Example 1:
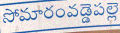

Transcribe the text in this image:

సోమారంవడ్డెపల్లె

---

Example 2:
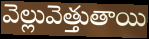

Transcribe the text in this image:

వెల్లువెత్తుతాయి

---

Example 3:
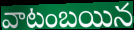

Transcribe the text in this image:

వాటంబయిన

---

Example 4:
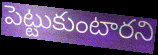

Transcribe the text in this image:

పెట్టుకుంటారని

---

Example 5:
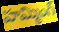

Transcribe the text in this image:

హమ్మింగ్